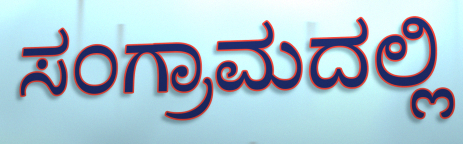
ಸಂಗ್ರಾಮದಲ್ಲಿ